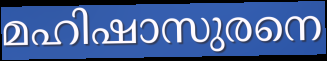
മഹിഷാസുരനെ